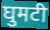
घुमटी